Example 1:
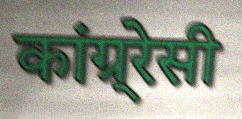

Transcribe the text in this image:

कांग्र्रेसी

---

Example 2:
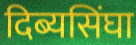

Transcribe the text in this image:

दिब्यसिंघा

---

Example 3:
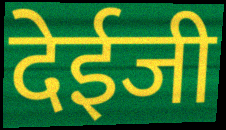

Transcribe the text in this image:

देईजी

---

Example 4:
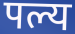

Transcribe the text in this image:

पल्य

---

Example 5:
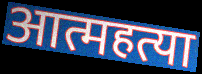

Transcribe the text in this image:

आत्‍महत्‍या